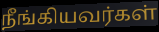
நீங்கியவர்கள்